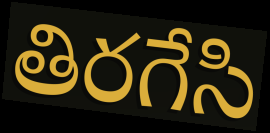
తిరగేసి